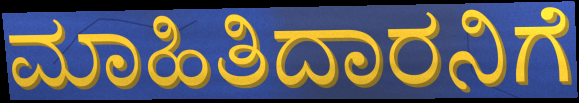
ಮಾಹಿತಿದಾರನಿಗೆ